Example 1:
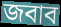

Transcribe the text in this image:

জবাব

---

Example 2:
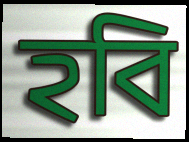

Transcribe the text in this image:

হবি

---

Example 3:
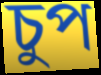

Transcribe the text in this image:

চুপ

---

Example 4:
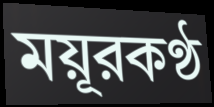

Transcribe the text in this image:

ময়ূরকণ্ঠ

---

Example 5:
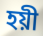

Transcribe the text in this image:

হয়ী